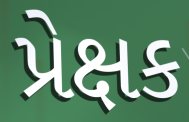
પ્રેક્ષક